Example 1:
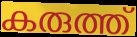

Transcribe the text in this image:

കരുത്ത്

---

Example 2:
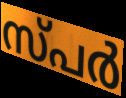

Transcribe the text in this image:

സ്പർ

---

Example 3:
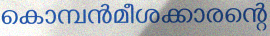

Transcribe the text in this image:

കൊമ്പൻമീശക്കാരന്റെ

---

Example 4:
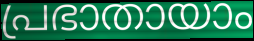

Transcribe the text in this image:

പ്രഭാതായാം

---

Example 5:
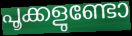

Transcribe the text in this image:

പൂക്കളുണ്ടോ